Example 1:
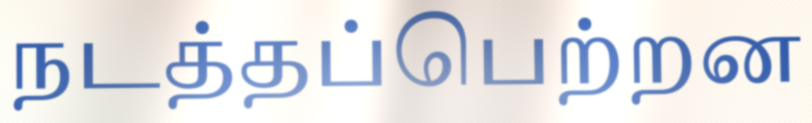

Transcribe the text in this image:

நடத்தப்பெற்றன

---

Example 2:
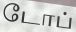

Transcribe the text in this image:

டோப்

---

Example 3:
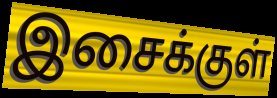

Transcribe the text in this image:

இசைக்குள்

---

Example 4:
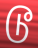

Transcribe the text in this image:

டூ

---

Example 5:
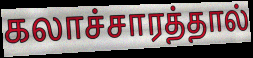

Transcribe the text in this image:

கலாச்சாரத்தால்